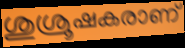
ശുശ്രൂഷകരാണ്